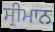
ਸ੍ਰੀਮਾਨ